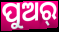
ପୁଅର୍